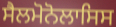
ਸੈਲਮੋਨੋਲਾਸਿਸ